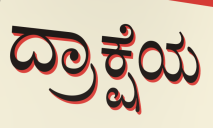
ದ್ರಾಕ್ಷೆಯ